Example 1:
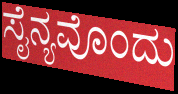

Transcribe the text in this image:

ಸೈನ್ಯವೊಂದು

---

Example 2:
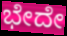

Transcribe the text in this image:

ಭೇದೇ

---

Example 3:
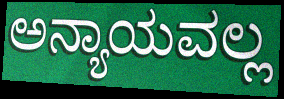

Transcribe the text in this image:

ಅನ್ಯಾಯವಲ್ಲ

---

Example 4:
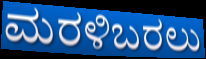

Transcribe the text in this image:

ಮರಳಿಬರಲು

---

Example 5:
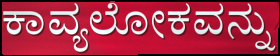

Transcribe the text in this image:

ಕಾವ್ಯಲೋಕವನ್ನು